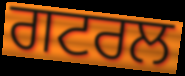
ਗਟਰਲ